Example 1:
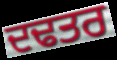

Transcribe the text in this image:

ਦਢਤਰ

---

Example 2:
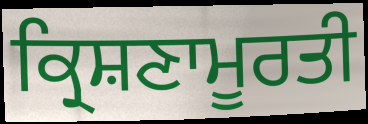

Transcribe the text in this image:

ਕ੍ਰਿਸ਼ਣਾਮੂਰਤੀ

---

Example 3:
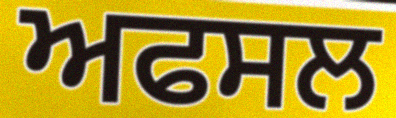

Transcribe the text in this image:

ਅਫਸਲ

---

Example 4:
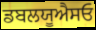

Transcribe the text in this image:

ਡਬਲਯੂਐਸਓ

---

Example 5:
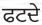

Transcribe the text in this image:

ਫਟਦੇ